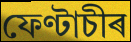
ফেণ্টাচীৰ